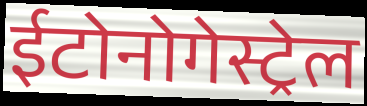
ईटोनोगेस्ट्रेल